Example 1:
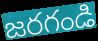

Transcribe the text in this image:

జరగండి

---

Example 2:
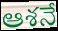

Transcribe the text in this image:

ఆశనే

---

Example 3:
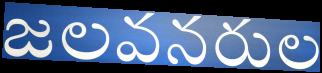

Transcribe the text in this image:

జలవనరుల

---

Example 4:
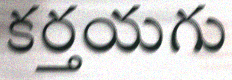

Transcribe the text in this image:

కర్తయగు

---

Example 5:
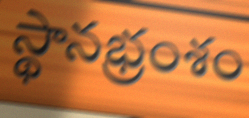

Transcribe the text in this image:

స్థానభ్రంశం